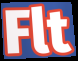
Flt